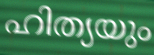
ഹിത്യയും